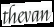
thevan